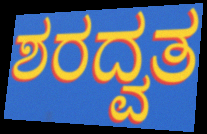
ಶರದ್ವತ